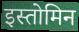
इस्तोमिन